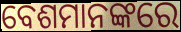
ବେଶମାନଙ୍କରେ